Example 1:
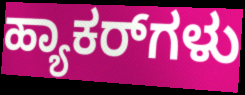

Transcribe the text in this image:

ಹ್ಯಾಕರ್‌ಗಳು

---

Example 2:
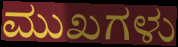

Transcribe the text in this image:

ಮುಖಗಳು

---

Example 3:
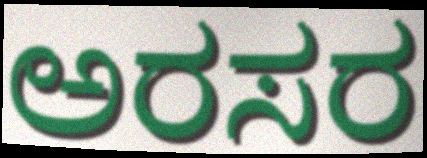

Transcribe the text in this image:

ಅರಸರ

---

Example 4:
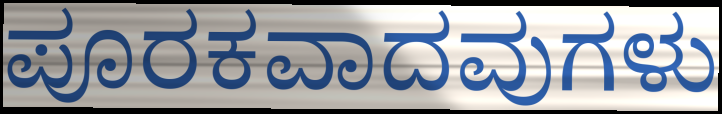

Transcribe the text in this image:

ಪೂರಕವಾದವುಗಳು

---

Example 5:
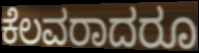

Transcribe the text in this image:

ಕೆಲವರಾದರೂ